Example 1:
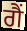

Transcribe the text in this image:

ਗੈਂ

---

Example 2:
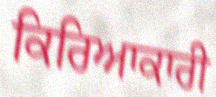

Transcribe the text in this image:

ਕਿਰਿਆਕਾਰੀ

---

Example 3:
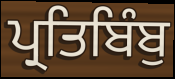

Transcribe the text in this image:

ਪ੍ਰਤਿਬਿੰਬੁ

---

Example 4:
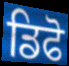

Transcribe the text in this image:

ਡਿਫੋ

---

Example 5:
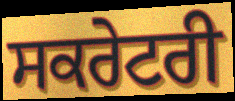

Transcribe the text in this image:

ਸਕਰੇਟਰੀ